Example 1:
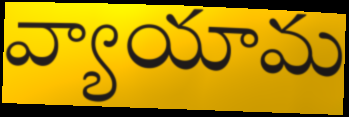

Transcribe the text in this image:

వ్యాయామ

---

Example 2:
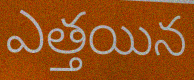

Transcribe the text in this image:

ఎత్తయిన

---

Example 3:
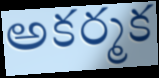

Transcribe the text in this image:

అకర్మక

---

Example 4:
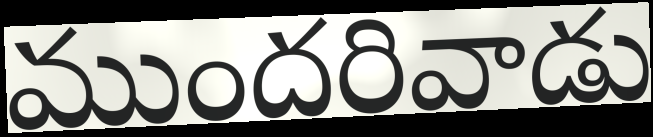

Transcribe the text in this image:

ముందరివాడు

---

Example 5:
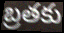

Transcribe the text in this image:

బ్రతకు